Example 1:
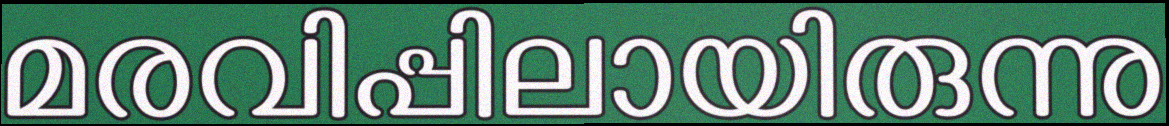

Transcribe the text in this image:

മരവിപ്പിലായിരുന്നു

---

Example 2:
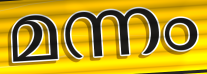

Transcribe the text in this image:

മന്നം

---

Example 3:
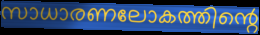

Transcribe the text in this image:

സാധാരണലോകത്തിന്റെ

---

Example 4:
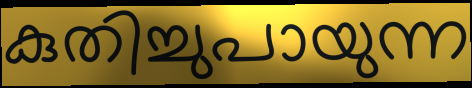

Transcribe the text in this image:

കുതിച്ചുപായുന്ന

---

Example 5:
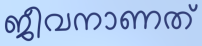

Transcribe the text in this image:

ജീവനാണത്